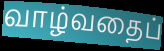
வாழ்வதைப்